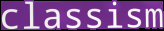
classism